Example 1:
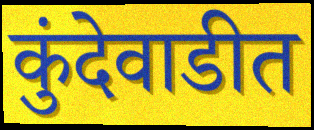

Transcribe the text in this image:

कुंदेवाडीत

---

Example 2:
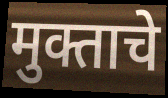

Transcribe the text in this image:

मुक्ताचे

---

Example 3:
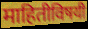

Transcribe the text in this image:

माहितीविषयी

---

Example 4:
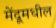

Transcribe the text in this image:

मेंदूमधील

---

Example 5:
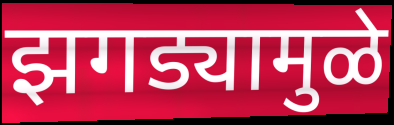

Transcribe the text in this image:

झगड्यामुळे